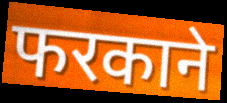
फरकाने